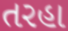
તરહા